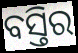
ବସ୍ତିର